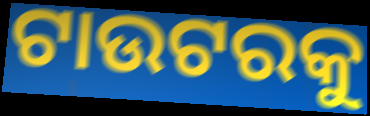
ଟାଉଟରକୁ